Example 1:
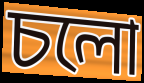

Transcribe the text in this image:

চলো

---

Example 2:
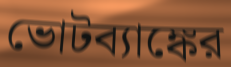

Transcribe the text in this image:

ভোটব্যাঙ্কের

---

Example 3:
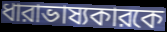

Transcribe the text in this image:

ধারাভাষ্যকারকে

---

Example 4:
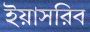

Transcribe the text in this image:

ইয়াসরিব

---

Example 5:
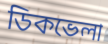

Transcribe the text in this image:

ডিকভেলা